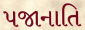
પજાનાતિ